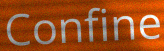
Confine